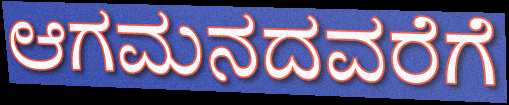
ಆಗಮನದವರೆಗೆ